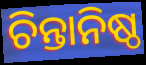
ଚିନ୍ତାନିଷ୍ଠ